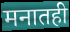
मनातही